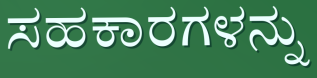
ಸಹಕಾರಗಳನ್ನು